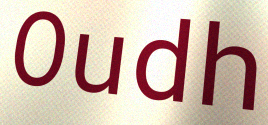
Oudh